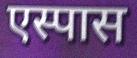
एस्पास